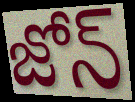
జోన్